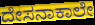
ದೇಸನಾಕಾಲೇ